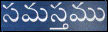
సమస్తము